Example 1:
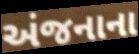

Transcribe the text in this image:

અંજનાના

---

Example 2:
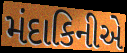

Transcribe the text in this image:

મંદાકિનીએ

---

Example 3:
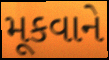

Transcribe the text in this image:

મૂકવાને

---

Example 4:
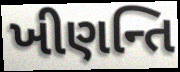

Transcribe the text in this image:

ખીણન્તિ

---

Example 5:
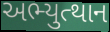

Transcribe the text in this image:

અભ્યુત્થાન